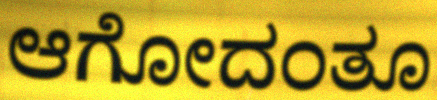
ಆಗೋದಂತೂ